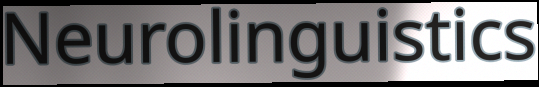
Neurolinguistics